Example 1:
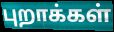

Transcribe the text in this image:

புறாக்கள்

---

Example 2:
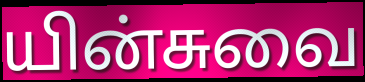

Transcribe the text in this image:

யின்சுவை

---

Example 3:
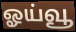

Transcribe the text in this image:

ஓய்வூ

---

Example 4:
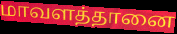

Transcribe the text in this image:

மாவளத்தானை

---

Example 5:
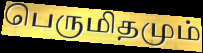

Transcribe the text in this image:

பெருமிதமும்